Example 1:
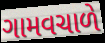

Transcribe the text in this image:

ગામવચાળે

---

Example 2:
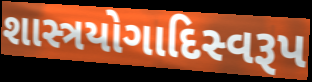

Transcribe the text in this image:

શાસ્ત્રયોગાદિસ્વરૂપ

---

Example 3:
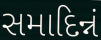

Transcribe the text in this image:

સમાદિન્નં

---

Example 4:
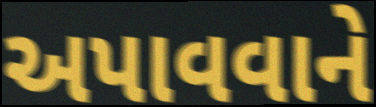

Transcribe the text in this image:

અપાવવાને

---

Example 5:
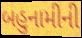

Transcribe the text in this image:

બહુનામીની